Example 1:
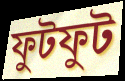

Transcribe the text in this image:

ফুটফুট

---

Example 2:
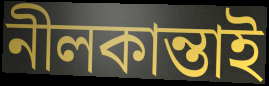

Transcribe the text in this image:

নীলকান্তাই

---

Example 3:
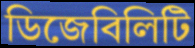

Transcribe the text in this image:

ডিজেবিলিটি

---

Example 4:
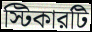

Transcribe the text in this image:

স্টিকারটি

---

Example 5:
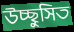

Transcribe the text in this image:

উচ্ছুসিত